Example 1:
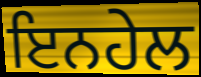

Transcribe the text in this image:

ਇਨਹੇਲ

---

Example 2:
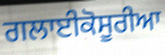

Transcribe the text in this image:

ਗਲਾਈਕੋਸੂਰੀਆ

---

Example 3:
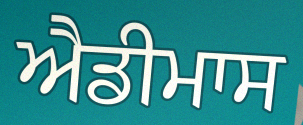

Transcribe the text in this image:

ਐਡੀਮਾਸ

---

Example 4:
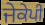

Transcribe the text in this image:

ਜੇਕੇਪੀ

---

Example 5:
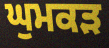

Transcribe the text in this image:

ਘੁਮਕੜ